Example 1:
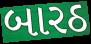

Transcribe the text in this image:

બારઠ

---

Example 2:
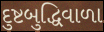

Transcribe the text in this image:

દુષ્ટબુદ્ધિવાળા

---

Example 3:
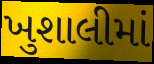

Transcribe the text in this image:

ખુશાલીમાં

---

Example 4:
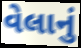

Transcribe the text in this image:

વેલાનું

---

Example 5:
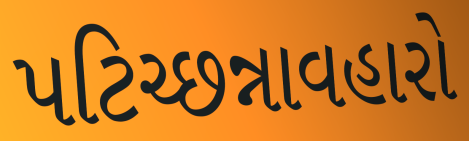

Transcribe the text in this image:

પટિચ્છન્નાવહારો